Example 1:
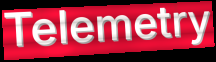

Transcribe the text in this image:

Telemetry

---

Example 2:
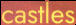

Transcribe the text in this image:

castles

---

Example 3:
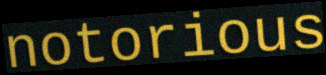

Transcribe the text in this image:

notorious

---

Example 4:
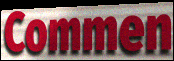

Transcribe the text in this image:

Commen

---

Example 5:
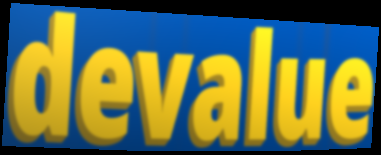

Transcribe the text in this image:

devalue